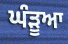
ਘੰੜੂਆ